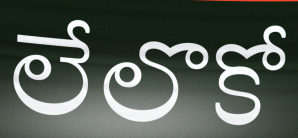
లేలొకో